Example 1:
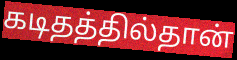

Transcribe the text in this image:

கடிதத்தில்தான்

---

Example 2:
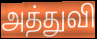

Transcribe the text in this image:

அத்துவி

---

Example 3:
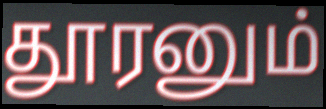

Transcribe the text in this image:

தூரனும்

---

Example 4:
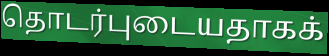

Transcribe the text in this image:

தொடர்புடையதாகக்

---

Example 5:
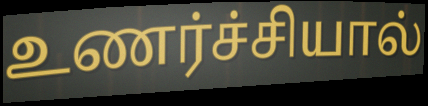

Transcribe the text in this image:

உணர்ச்சியால்